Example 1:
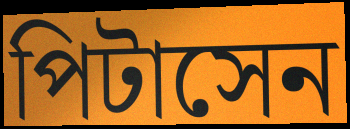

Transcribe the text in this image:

পিটাসেন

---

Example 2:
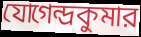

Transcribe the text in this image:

যোগেন্দ্রকুমার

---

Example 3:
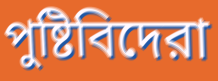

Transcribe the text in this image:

পুষ্টিবিদেরা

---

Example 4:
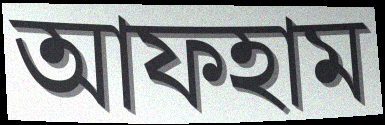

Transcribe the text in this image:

আফহাম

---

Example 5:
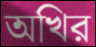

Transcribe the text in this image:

অখির